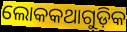
ଲୋକକଥାଗୁଡ଼ିକ